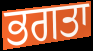
ਭਗਤਾ